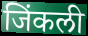
जिंकली